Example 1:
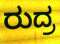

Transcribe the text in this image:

ರುದ್ರ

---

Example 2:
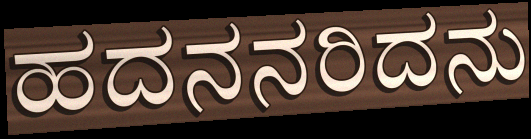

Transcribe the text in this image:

ಹದನನರಿದನು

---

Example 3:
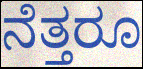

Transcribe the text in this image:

ನೆತ್ತರೂ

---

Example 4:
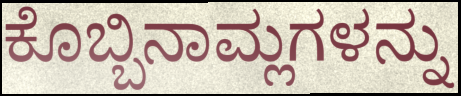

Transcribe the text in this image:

ಕೊಬ್ಬಿನಾಮ್ಲಗಳನ್ನು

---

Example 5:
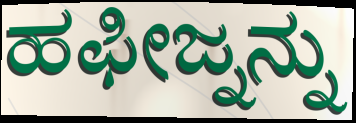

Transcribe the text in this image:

ಹಫೀಜ್ನನ್ನು